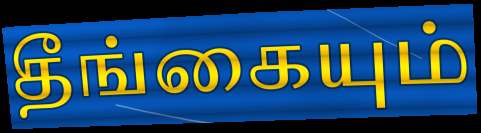
தீங்கையும்